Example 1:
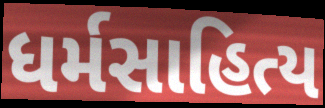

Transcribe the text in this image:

ધર્મસાહિત્ય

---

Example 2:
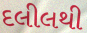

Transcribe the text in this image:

દલીલથી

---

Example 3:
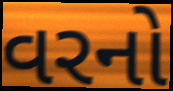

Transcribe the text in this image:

વરનો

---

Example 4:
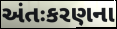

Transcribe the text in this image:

અંતઃકરણના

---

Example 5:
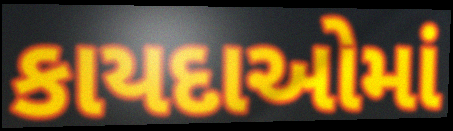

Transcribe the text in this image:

કાયદાઓમાં